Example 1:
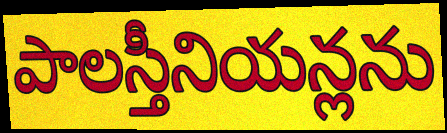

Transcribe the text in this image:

పాలస్తీనియన్లను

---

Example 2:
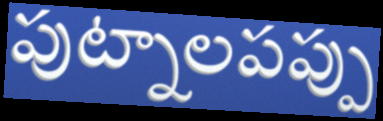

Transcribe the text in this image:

పుట్నాలపప్పు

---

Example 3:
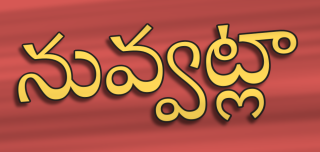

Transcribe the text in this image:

నువ్వట్లా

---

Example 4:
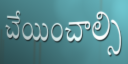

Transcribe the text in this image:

చేయించాల్సి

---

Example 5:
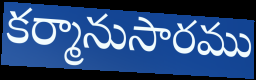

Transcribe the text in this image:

కర్మానుసారము